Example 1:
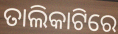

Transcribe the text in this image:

ତାଲିକାଟିରେ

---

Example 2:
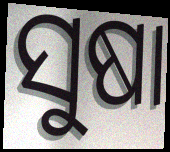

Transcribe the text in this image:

ସୁଷା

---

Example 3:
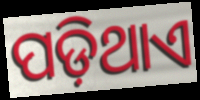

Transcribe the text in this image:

ପଡ଼ିଥାଏ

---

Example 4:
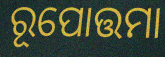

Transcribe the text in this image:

ରୂପୋତ୍ତମା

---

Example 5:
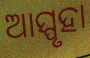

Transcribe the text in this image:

ଆସ୍ପୃହା